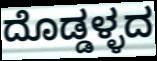
ದೊಡ್ಡಳ್ಳದ